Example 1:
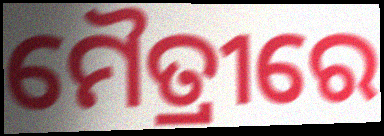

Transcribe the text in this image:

ମୈତ୍ରୀରେ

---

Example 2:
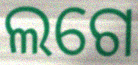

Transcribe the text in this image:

ଲଗେ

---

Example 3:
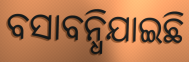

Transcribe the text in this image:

ବସାବନ୍ଧିଯାଇଛି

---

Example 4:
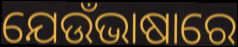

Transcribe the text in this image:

ଯେଉଁଭାଷାରେ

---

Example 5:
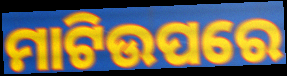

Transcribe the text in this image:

ମାଟିଉପରେ